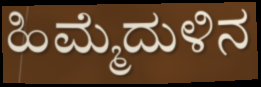
ಹಿಮ್ಮೆದುಳಿನ